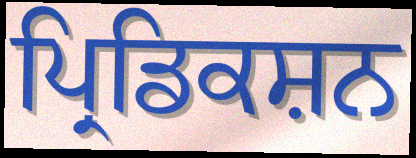
ਪ੍ਰਿਡਿਕਸ਼ਨ